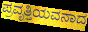
ಪ್ರವೃತ್ತಿಯವನಾದ